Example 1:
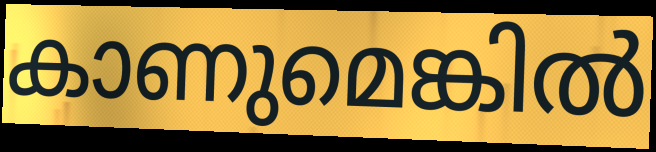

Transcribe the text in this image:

കാണുമെങ്കിൽ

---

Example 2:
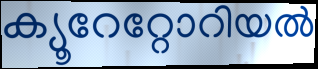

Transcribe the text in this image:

ക്യൂറേറ്റോറിയൽ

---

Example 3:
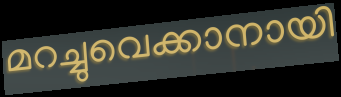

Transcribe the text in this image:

മറച്ചുവെക്കാനായി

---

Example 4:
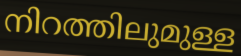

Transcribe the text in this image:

നിറത്തിലുമുള്ള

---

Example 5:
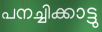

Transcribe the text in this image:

പനച്ചിക്കാട്ടു